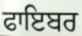
ਫਾਇਬਰ